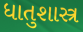
ધાતુશાસ્ત્ર